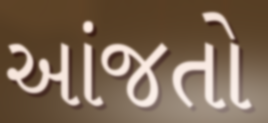
આંજતો